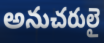
అనుచరులై